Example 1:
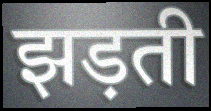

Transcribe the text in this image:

झड़ती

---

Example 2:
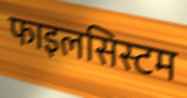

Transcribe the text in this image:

फाइलसिस्टम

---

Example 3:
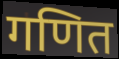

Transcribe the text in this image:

गणित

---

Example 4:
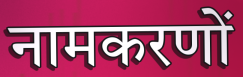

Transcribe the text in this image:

नामकरणों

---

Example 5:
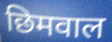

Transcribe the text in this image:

छिमवाल